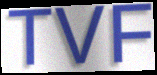
TVF